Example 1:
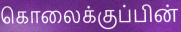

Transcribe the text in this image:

கொலைக்குப்பின்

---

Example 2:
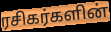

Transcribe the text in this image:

ரசிகர்களின்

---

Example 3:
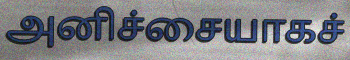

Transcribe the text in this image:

அனிச்சையாகச்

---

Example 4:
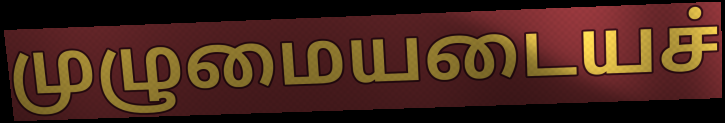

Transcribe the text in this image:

முழுமையடையச்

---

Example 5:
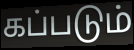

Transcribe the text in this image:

கப்படும்